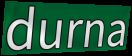
durna